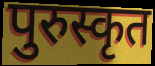
पुरुस्कृत